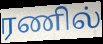
ரணில்